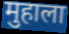
मुहाला